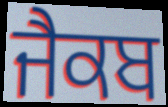
ਜੈਕਬ